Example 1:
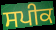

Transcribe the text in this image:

ਸਪੀਕ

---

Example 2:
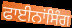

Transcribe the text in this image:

ਫਾਈਨਾਂਸਿੰਗ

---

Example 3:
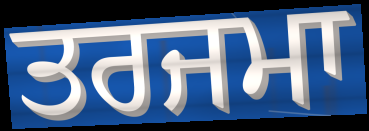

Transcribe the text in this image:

ਤਰਜਮਾ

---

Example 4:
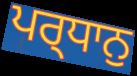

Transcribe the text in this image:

ਪਰ੍ਧਾਨੁ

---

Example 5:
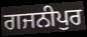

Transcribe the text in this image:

ਗਜਨੀਪੁਰ